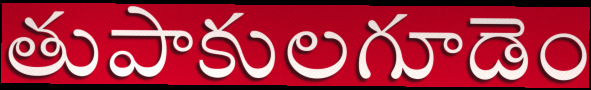
తుపాకులగూడెం